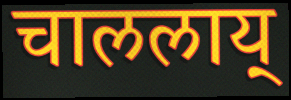
चाललाय्